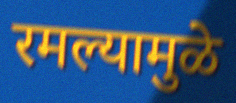
रमल्यामुळे